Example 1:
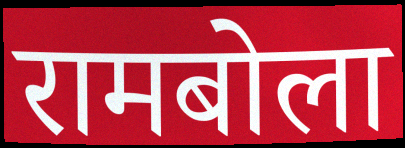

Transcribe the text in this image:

रामबोला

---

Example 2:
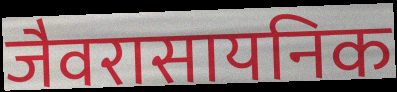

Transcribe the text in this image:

जैवरासायनिक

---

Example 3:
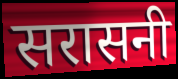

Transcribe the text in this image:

सरासनी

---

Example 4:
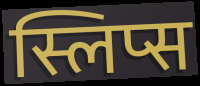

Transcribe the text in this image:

स्लिप्स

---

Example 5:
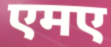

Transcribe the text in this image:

एमए